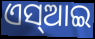
ଏସ୍ଆଇ